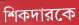
শিকদারকে